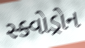
સ્ક્વોડ્રોન